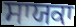
ਸਾਯਕਾ